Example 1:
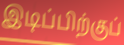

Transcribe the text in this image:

இடிப்பிற்குப்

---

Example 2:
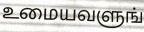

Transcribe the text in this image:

உமையவளுங்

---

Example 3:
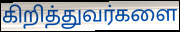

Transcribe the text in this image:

கிறித்துவர்களை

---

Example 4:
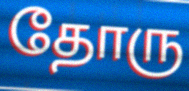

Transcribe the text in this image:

தோரு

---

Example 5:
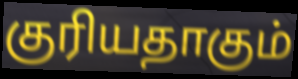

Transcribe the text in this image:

குரியதாகும்